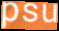
psu